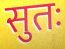
सुतः